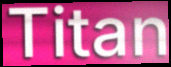
Titan